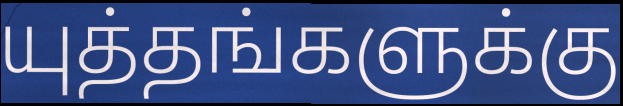
யுத்தங்களுக்கு